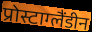
प्रोस्टाग्लैंडीन